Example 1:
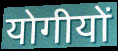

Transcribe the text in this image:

योगीयों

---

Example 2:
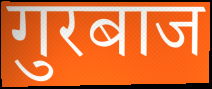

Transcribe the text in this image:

गुरबाज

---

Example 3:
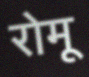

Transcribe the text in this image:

रोमू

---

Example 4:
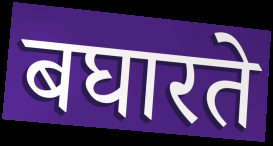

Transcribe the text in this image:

बघारते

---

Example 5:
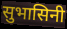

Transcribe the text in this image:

सुभासिनी